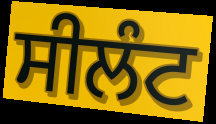
ਸੀਲੰਟ